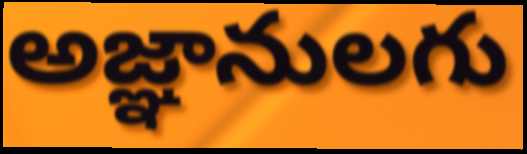
అజ్ఞానులగు